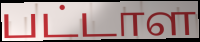
பட்டாள